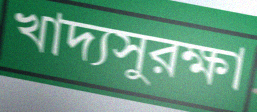
খাদ্যসুরক্ষা